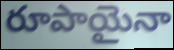
రూపాయైనా